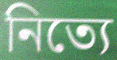
নিত্যে